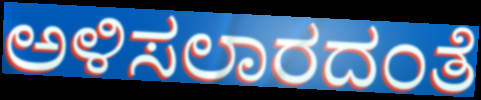
ಅಳಿಸಲಾರದಂತೆ